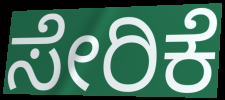
ಸೇರಿಕೆ